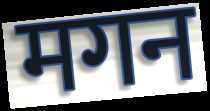
मगन